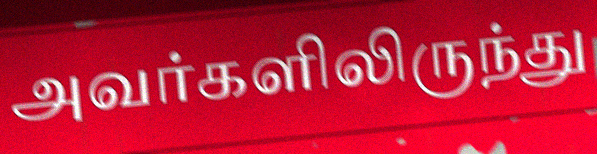
அவர்களிலிருந்து